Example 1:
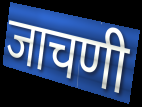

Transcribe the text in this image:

जाचणी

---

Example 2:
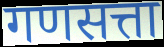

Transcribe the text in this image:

गणसत्ता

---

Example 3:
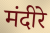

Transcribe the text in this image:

मंदीरे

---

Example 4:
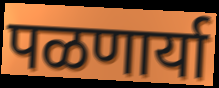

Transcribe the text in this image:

पळणार्या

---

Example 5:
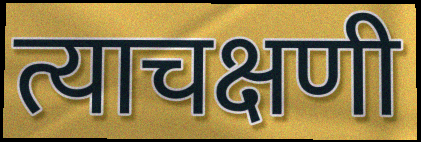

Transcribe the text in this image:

त्याचक्षणी